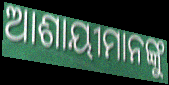
ଆଶାୟୀମାନଙ୍କୁ